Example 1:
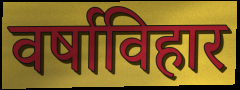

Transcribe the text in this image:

वर्षाविहार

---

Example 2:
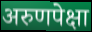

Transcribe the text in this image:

अरुणपेक्षा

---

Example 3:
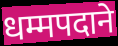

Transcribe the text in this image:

धम्मपदाने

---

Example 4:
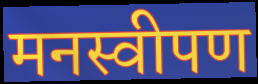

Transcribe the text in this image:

मनस्वीपण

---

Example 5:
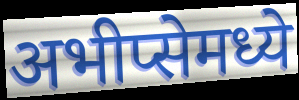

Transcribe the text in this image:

अभीप्सेमध्ये